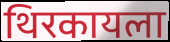
थिरकायला